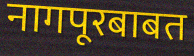
नागपूरबाबत